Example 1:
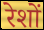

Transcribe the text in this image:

रेशों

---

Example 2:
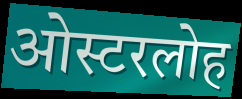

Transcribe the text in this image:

ओस्टरलोह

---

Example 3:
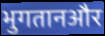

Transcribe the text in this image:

भुगतानऔर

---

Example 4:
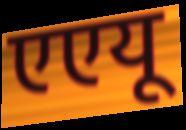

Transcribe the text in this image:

एएयू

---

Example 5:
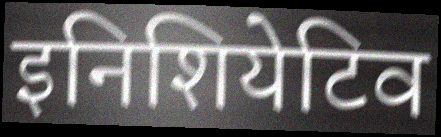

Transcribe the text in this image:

इनिशियेटिव